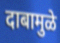
दाबामुळे